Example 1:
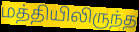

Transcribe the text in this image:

மத்தியிலிருந்த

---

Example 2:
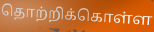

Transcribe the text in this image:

தொற்றிக்கொள்ள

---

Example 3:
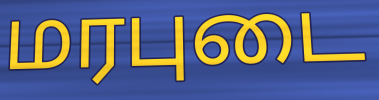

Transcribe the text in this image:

மரபுடை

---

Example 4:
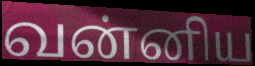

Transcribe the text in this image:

வன்னிய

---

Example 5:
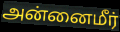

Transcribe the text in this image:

அன்னைமீர்